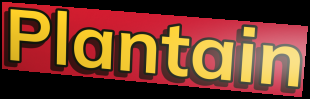
Plantain